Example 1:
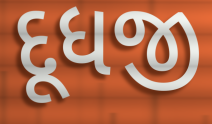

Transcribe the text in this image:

દૂધજી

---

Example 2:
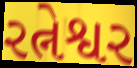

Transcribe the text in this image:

રત્નેશ્વર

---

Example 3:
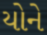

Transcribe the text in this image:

યોને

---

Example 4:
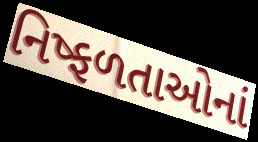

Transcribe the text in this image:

નિષ્ફળતાઓનાં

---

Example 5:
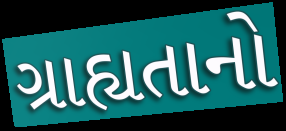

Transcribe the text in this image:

ગ્રાહ્યતાનો